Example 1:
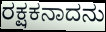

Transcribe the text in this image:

ರಕ್ಷಕನಾದನು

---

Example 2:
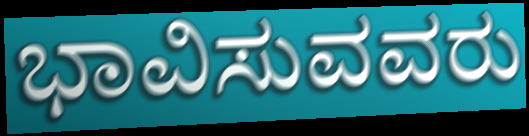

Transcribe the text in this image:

ಭಾವಿಸುವವರು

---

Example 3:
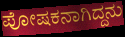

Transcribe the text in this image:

ಪೋಷಕನಾಗಿದ್ದನು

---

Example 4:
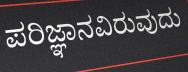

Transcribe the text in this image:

ಪರಿಜ್ಞಾನವಿರುವುದು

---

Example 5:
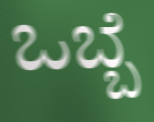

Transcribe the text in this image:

ಒಬ್ಬೆ